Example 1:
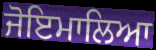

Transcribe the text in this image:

ਜੋਇਮਾਲਿਆ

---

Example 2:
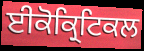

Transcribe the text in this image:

ਈਕੋਕ੍ਰਿਟਿਕਲ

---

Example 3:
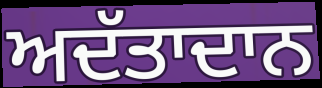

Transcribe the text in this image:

ਅਦੱਤਾਦਾਨ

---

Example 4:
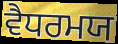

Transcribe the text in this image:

ਵੈਧਰਮਯ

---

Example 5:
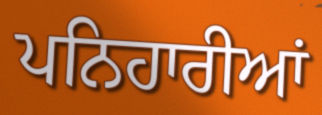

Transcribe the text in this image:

ਪਨਿਹਾਰੀਆਂ